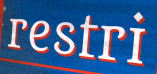
restri